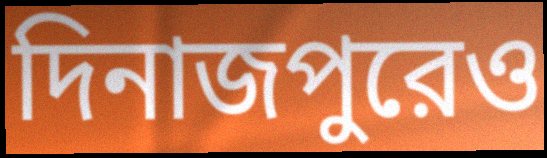
দিনাজপুরেও